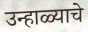
उन्हाळ्याचे